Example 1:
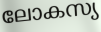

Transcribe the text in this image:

ലോകസ്യ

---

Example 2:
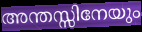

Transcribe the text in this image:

അന്തസ്സിനേയും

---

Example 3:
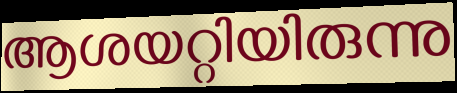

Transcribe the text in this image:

ആശയറ്റിയിരുന്നു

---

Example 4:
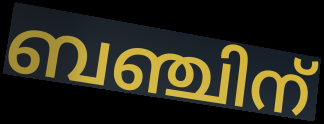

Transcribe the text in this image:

ബഞ്ചിന്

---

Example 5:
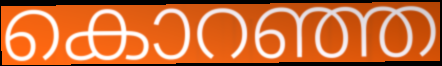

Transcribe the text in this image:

കൊറഞ്ഞ